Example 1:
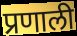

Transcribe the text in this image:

प्रणाली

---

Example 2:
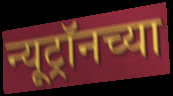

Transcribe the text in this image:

न्यूट्रॉनच्या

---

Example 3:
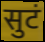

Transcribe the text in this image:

सुटं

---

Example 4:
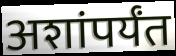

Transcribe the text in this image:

अशांपर्यंत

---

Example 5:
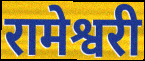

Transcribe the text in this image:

रामेश्वरी